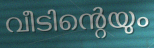
വീടിന്റെയും